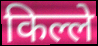
किल्ले